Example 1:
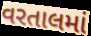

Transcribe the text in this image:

વરતાલમાં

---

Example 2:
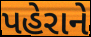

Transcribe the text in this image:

પહેરાને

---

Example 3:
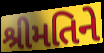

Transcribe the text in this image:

શ્રીમતિને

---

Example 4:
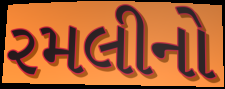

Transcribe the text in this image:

રમલીનો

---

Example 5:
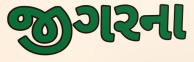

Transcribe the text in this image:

જીગરના